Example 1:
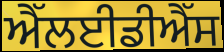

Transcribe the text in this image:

ਐੱਲਈਡੀਐੱਸ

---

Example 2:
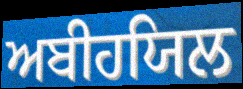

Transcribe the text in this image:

ਅਬੀਹਯਿਲ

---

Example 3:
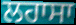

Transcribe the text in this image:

ਲਹਾਸਾ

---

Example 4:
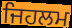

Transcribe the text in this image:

ਜਿਹਲਮ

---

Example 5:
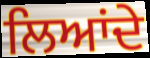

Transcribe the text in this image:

ਲਿਆਂਦੇ